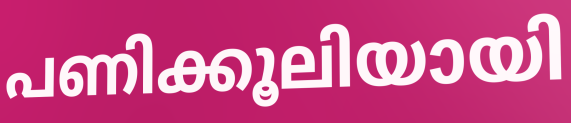
പണിക്കൂലിയായി